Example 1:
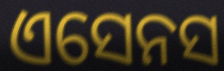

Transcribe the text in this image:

ଏସେନସ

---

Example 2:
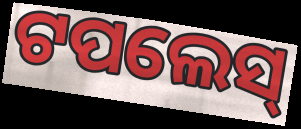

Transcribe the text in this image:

ଟପଲେସ୍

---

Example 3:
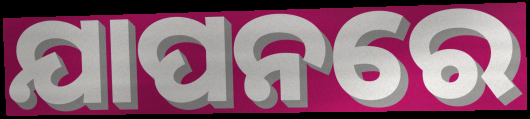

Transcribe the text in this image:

ଯାପନରେ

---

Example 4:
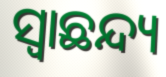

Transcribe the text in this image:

ସ୍ୱାଛନ୍ଦ୍ୟ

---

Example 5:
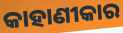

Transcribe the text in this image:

କାହାଣୀକାର